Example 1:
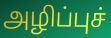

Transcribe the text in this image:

அழிப்புச்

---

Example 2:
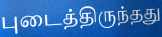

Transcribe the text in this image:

புடைத்திருந்தது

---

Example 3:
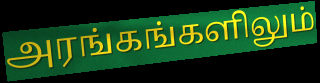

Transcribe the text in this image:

அரங்கங்களிலும்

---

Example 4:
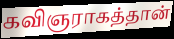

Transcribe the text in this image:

கவிஞராகத்தான்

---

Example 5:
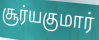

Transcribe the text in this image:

சூர்யகுமார்